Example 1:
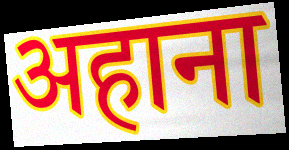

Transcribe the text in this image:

अहाना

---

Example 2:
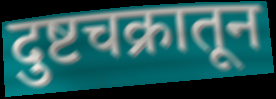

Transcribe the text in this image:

दुष्टचक्रातून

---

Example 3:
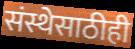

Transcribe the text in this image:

संस्थेसाठीही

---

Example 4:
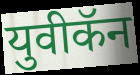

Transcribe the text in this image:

युवीकॅन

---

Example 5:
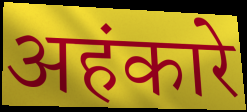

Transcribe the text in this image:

अहंकारे